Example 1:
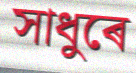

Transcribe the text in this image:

সাধুৰে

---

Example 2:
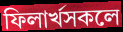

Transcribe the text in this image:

ফিলাৰ্খসকলে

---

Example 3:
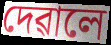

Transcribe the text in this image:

দেৱালে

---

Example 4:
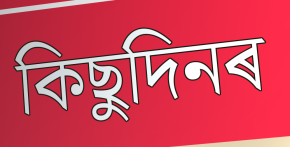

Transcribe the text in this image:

কিছুদিনৰ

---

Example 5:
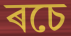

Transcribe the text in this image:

ৰচে